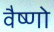
वैष्णो